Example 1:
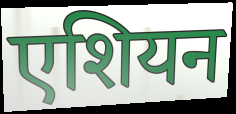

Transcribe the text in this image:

एशियन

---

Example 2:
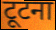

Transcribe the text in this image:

टूटना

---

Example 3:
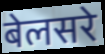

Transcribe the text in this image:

बेलसरे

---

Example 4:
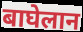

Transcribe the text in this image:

बाघेलान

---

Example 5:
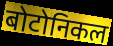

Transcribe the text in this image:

बोटोनिकल